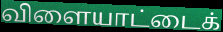
விளையாட்டைக்